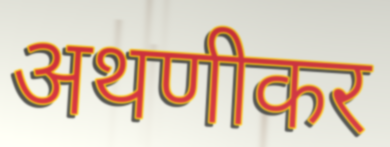
अथणीकर